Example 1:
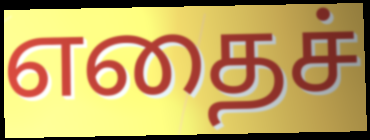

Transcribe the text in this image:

எதைச்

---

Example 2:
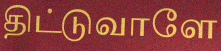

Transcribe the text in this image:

திட்டுவாளே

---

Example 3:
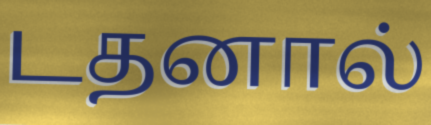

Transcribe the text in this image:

டதனால்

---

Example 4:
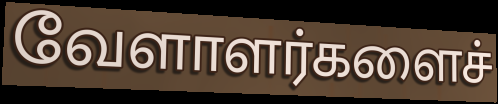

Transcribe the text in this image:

வேளாளர்களைச்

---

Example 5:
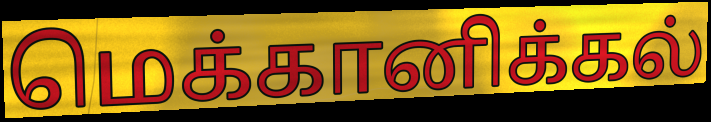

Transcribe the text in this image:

மெக்கானிக்கல்